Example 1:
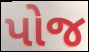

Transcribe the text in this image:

પોજ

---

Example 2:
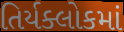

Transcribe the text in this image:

તિર્યક્લોકમાં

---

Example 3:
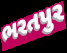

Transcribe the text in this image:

ભરતપુર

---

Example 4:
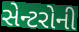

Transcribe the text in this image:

સેન્ટરોની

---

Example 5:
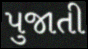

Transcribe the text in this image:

પુજાતી